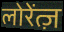
लोरेंत्ज़